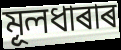
মূলধাৰাৰ